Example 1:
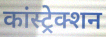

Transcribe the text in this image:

कांस्ट्रेक्शन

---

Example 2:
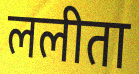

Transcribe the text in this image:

ललीता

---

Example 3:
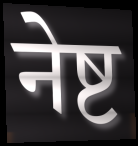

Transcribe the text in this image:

नेष्ट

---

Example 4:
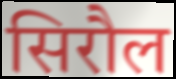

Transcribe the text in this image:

सिरौल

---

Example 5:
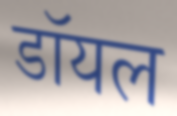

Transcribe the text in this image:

डॉयल